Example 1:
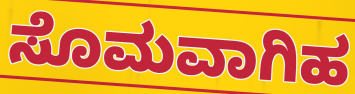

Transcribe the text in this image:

ಸೊಮವಾಗಿಹ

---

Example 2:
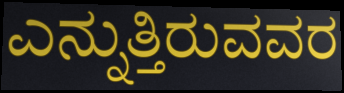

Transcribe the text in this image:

ಎನ್ನುತ್ತಿರುವವರ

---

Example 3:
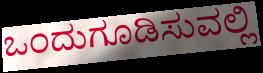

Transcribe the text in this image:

ಒಂದುಗೂಡಿಸುವಲ್ಲಿ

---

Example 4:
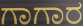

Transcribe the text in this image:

ಗಾಗಾರ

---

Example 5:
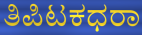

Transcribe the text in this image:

ತಿಪಿಟಕಧರಾ